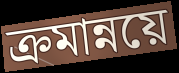
ক্রমান্নয়ে